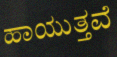
ಹಾಯುತ್ತವೆ